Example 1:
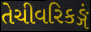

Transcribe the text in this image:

તેચીવરિકઙ્ગં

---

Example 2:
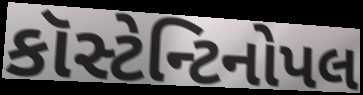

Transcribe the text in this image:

કૉસ્ટેન્ટિનોપલ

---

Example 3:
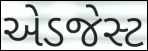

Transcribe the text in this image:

એડજેસ્ટ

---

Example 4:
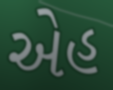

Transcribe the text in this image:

એહ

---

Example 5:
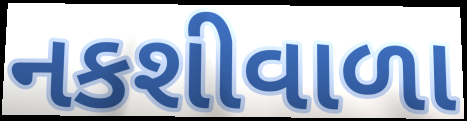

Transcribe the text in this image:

નકશીવાળા